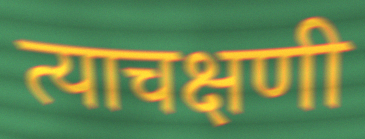
त्याचक्षणी